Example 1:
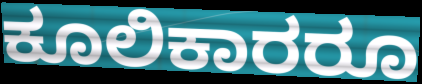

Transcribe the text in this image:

ಕೂಲಿಕಾರರೂ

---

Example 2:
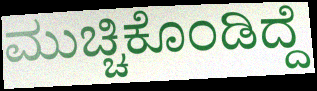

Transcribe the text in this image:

ಮುಚ್ಚಿಕೊಂಡಿದ್ದೆ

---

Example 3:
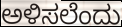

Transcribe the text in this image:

ಅಳಿಸಲೆಂದು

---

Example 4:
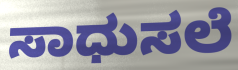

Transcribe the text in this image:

ಸಾಧುಸಲೆ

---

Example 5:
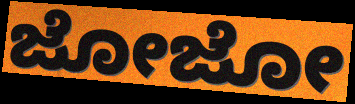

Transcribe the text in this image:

ಜೋಜೋ